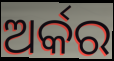
ଅର୍କର